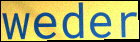
weder